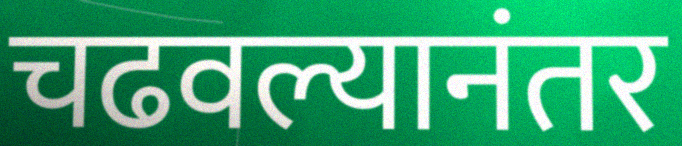
चढवल्यानंतर